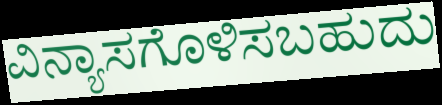
ವಿನ್ಯಾಸಗೊಳಿಸಬಹುದು